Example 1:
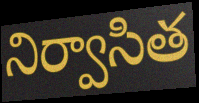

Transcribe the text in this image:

నిర్వాసిత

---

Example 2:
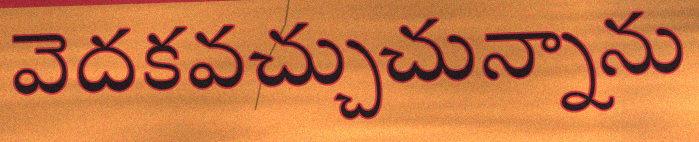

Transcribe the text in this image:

వెదకవచ్చుచున్నాను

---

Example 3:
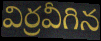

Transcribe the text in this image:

విర్రవీగిన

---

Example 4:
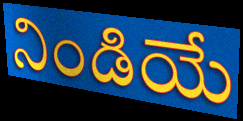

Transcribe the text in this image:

నిండియే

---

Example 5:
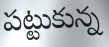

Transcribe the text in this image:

పట్టుకున్న